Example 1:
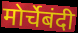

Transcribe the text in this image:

मोर्चेबंदी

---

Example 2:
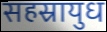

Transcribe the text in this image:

सहस्रायुध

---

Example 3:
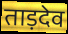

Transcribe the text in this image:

ताड़देव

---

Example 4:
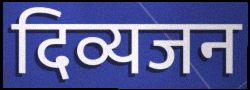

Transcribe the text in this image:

दिव्यजन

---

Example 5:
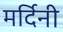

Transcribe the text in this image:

मर्दिनी